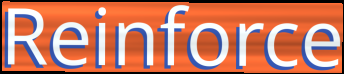
Reinforce